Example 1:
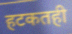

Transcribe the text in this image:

हटकतही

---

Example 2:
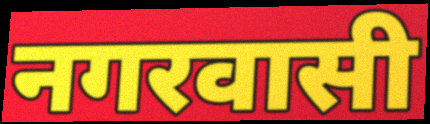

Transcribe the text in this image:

नगरवासी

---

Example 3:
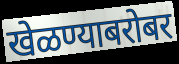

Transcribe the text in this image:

खेळण्याबरोबर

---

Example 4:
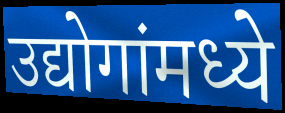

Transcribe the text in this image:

उद्योगांमध्ये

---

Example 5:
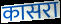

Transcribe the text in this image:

कासरा